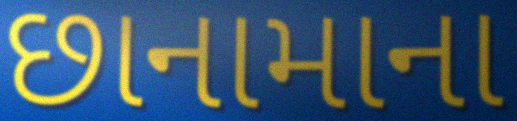
છાનામાના